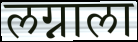
लग्नाला